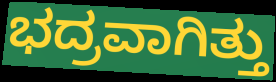
ಭದ್ರವಾಗಿತ್ತು